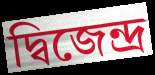
দ্বিজেন্দ্র